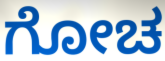
ಗೋಚ